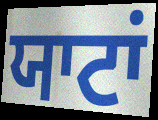
ਯਾਟਾਂ